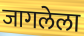
जागलेला